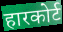
हारकोर्ट